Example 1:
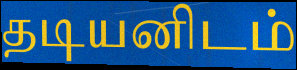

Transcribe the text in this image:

தடியனிடம்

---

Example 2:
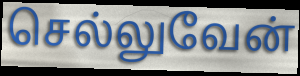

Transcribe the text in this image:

செல்லுவேன்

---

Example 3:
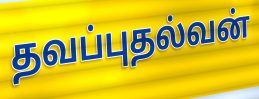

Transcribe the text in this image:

தவப்புதல்வன்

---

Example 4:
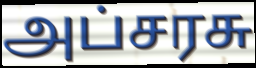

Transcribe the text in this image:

அப்சரசு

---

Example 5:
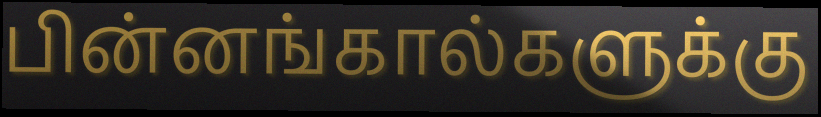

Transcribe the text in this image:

பின்னங்கால்களுக்கு